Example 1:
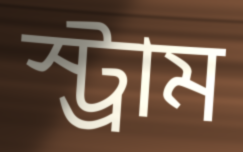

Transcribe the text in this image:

স্ট্রাম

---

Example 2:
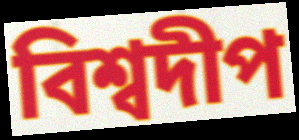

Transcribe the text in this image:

বিশ্বদীপ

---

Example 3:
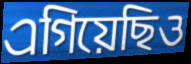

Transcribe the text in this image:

এগিয়েছিও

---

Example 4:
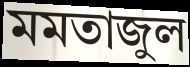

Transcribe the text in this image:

মমতাজুল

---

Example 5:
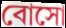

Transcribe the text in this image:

বোসো